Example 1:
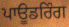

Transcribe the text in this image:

ਪਾਊਡਰਿੰਗ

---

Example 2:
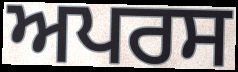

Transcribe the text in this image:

ਅਪਰਸ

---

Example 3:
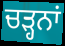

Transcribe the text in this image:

ਚੜ੍ਹਨਾਂ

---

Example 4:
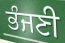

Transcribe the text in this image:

ਭੰਜਣੀ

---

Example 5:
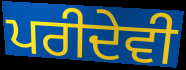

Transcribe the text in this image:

ਪਰੀਦੇਵੀ